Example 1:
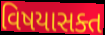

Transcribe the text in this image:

વિષયાસક્ત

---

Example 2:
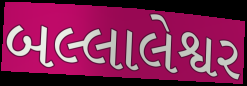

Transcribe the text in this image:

બલ્લાલેશ્વર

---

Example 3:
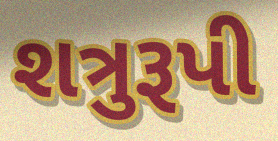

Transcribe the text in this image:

શત્રુરૂપી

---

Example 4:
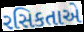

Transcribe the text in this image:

રસિકતાએ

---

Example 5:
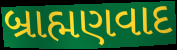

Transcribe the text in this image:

બ્રાહ્મણવાદ